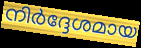
നിർദ്ദേശമായ